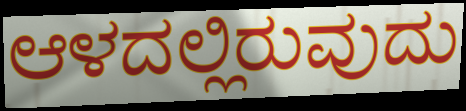
ಆಳದಲ್ಲಿರುವುದು